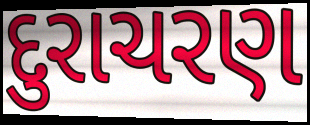
દુરાચરણ